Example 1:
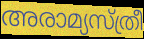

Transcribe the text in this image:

അരാമ്യസ്ത്രീ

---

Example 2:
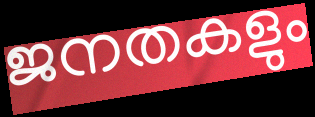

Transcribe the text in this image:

ജനതകളും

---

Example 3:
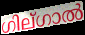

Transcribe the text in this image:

ഗില്ഗാൽ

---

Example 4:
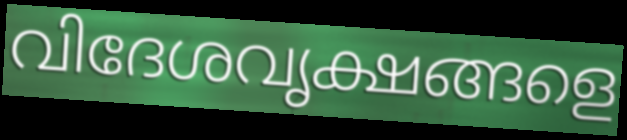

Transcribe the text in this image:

വിദേശവൃക്ഷങ്ങളെ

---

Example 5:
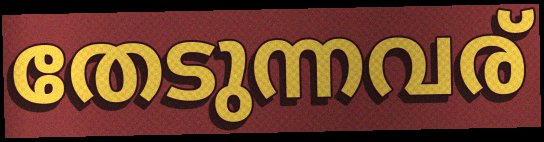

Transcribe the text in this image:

തേടുന്നവര്